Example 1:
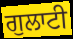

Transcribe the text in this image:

ਗੁਲਾਟੀ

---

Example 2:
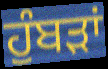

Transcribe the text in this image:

ਹੁੰਬੜਾਂ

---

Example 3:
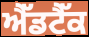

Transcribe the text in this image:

ਐੱਡਟੈੱਕ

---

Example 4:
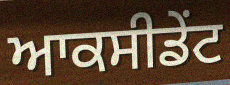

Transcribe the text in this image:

ਆਕਸੀਡੇਂਟ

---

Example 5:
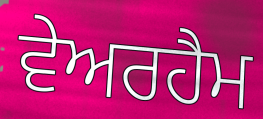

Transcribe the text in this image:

ਵੇਅਰਹੈਮ